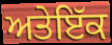
ਅਤੇਇੱਕ